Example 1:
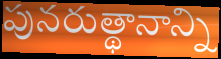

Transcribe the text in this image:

పునరుత్థానాన్ని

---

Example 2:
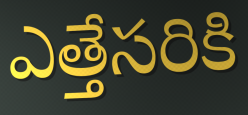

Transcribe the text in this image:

ఎత్తేసరికి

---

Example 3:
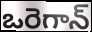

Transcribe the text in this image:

ఒరెగాన్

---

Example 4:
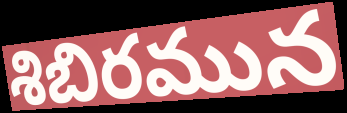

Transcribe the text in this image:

శిబిరమున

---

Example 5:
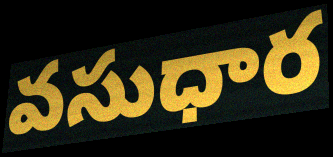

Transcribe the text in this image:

వసుధార